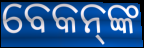
ବେକନ୍‌ଙ୍କ